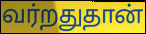
வர்றதுதான்